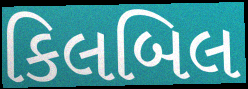
કિલબિલ